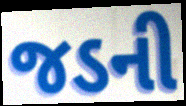
જડની